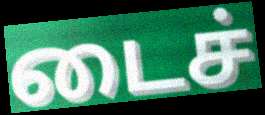
டைச்